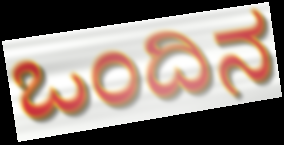
ಒಂದಿನ